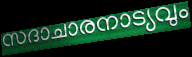
സദാചാരനാട്യവും